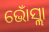
ଭୋଁସ୍ଲା